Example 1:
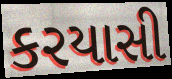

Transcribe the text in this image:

કરયાસી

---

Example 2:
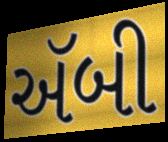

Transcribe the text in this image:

ઍબી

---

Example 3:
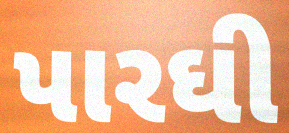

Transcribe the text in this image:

પારઘી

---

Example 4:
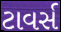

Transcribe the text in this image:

ટાવર્સ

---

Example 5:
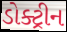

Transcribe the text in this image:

ડોક્ટ્રીન